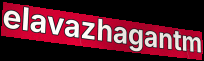
elavazhagantm